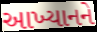
આખ્યાનને